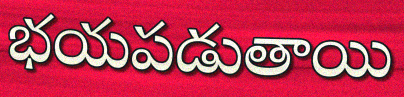
భయపడుతాయి